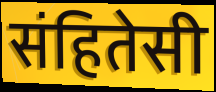
संहितेसी